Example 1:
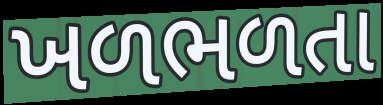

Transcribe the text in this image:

ખળભળતા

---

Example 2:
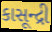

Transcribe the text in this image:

કાસૂન્દ્રી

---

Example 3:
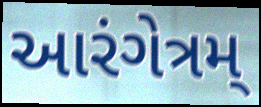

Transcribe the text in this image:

આરંગેત્રમ્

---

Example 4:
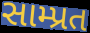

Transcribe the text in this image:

સામ્પ્રત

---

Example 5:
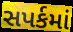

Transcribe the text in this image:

સપર્કમાં